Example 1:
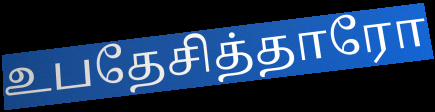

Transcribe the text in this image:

உபதேசித்தாரோ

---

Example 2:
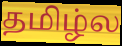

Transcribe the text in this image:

தமிழ்ல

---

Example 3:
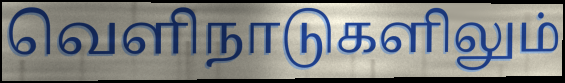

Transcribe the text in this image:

வெளிநாடுகளிலும்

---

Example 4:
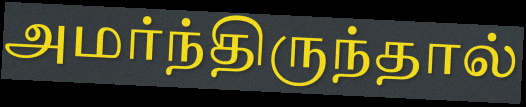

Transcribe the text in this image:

அமர்ந்திருந்தால்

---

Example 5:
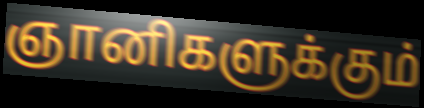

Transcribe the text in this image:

ஞானிகளுக்கும்